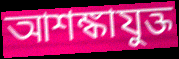
আশঙ্কাযুক্ত